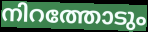
നിറത്തോടും